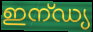
ഇന്ഡ്യ